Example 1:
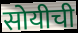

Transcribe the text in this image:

सोयीची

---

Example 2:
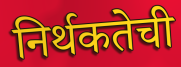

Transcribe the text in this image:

निर्थकतेची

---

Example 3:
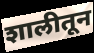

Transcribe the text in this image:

शालीतून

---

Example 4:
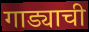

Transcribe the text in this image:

गाड्याची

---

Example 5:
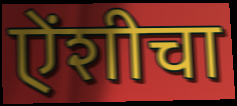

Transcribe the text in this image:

ऐंशीचा